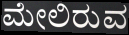
ಮೇಲಿರುವ